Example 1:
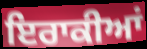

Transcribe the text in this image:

ਇਰਾਕੀਆਂ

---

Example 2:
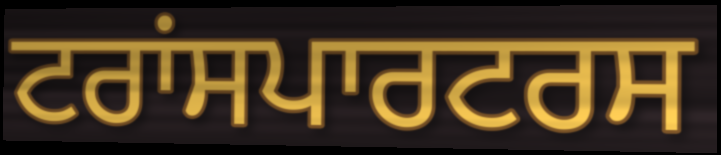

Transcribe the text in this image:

ਟਰਾਂਸਪਾਰਟਰਸ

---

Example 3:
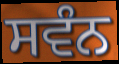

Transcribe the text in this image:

ਸਵੰਨ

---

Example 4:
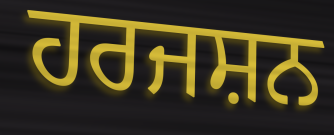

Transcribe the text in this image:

ਹਰਜਸ਼ਨ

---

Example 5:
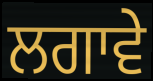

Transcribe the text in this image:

ਲਗਾਵੇ